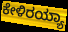
ಕೇಳಿರಯ್ಯಾ